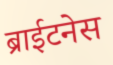
ब्राईटनेस